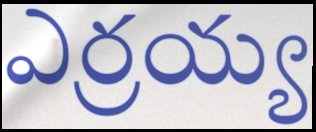
ఎర్రయ్య